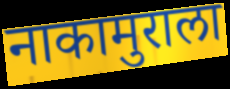
नाकामुराला